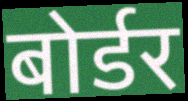
बोर्डर